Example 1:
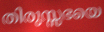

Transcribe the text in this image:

തിരുസ്സഭയെ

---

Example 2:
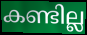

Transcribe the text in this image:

കണ്ടില്ല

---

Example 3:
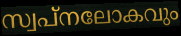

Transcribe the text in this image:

സ്വപ്നലോകവും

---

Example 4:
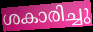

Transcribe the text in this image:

ശകാരിച്ചു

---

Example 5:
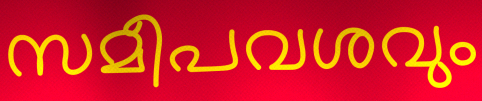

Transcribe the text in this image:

സമീപവശവും